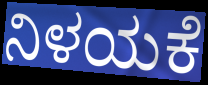
ನಿಳಯಕೆ